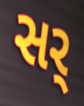
સર્